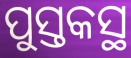
ପୁସ୍ତକସ୍ଥ